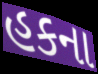
હકના